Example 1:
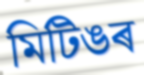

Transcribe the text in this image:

মিটিঙৰ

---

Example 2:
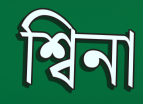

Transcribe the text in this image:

শ্বিনা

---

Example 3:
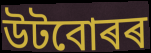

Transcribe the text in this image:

উটবোৰৰ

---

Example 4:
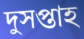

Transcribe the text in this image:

দুসপ্তাহ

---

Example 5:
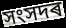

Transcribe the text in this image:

সংসদৰ